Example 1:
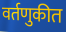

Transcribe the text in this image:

वर्तणुकीत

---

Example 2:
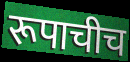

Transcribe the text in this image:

रूपाचीच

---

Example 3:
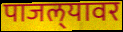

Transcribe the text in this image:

पाजल्यावर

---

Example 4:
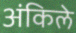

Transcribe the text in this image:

अंकिले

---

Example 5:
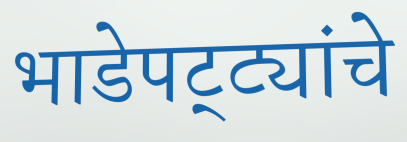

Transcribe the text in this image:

भाडेपट्ट्यांचे